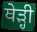
ਥੇੜ੍ਹੀ